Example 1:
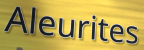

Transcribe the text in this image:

Aleurites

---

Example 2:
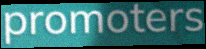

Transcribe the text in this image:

promoters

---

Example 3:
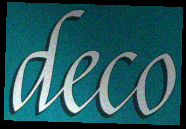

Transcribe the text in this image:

deco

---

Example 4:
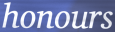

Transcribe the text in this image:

honours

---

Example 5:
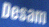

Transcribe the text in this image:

Desam